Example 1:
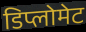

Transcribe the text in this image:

डिप्लोमेट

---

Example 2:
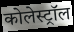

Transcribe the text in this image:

कोलेस्ट्रॉल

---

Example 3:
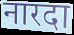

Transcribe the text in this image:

नारदा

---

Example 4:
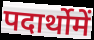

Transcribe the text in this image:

पदार्थोमें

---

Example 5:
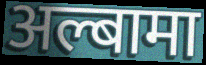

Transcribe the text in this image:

अल्बामा